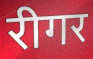
रीगर